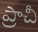
ప్రాచీ